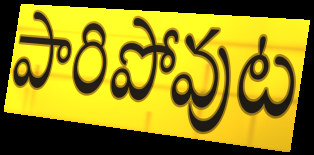
పారిపోవుట